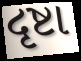
દૃષ્ટા